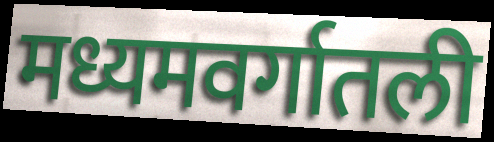
मध्यमवर्गातली